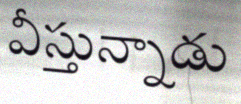
వీస్తున్నాడు